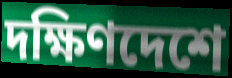
দক্ষিণদেশে